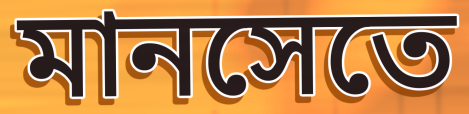
মানসেতে